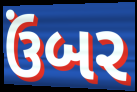
ઉંબર